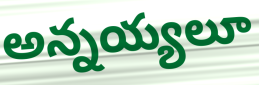
అన్నయ్యలూ